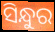
ସିନ୍ଧୁର